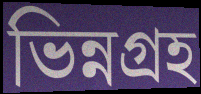
ভিন্নগ্রহ